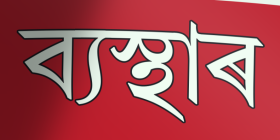
ব্যস্থাৰ